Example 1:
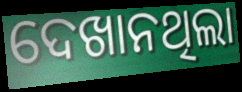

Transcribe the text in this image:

ଦେଖାନଥିଲା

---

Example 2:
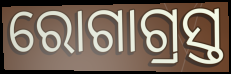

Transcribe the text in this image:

ରୋଗାଗ୍ରସ୍ତ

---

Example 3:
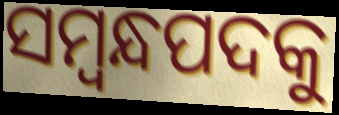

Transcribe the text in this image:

ସମ୍ବନ୍ଧପଦକୁ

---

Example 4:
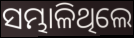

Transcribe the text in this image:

ସମ୍ଭାଳିଥିଲେ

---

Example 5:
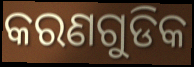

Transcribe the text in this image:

କରଣଗୁଡିକ